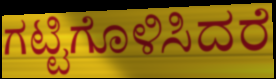
ಗಟ್ಟಿಗೊಳಿಸಿದರೆ